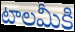
టాలమీకి